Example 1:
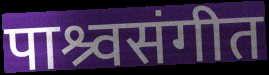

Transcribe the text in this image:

पाश्र्वसंगीत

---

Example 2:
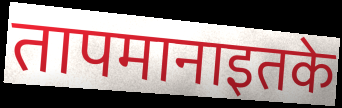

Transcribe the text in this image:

तापमानाइतके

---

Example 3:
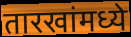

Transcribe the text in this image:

तारखांमध्ये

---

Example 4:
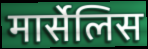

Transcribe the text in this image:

मार्सेलिस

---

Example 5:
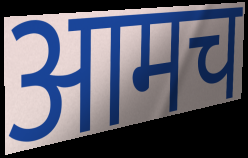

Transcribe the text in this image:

आमच